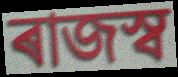
ৰাজস্ব